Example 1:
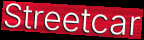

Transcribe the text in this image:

Streetcar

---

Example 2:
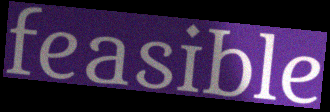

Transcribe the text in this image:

feasible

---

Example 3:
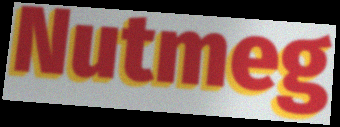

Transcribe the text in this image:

Nutmeg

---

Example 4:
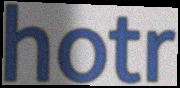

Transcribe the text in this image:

hotr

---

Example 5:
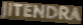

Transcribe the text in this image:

JITENDRA